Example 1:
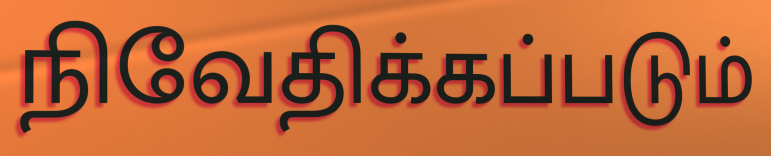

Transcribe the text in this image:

நிவேதிக்கப்படும்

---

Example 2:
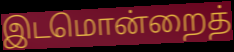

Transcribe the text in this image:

இடமொன்றைத்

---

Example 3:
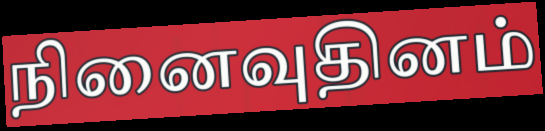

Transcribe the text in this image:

நினைவுதினம்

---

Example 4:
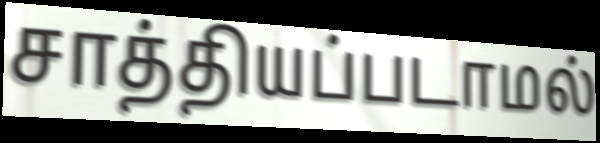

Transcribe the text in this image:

சாத்தியப்படாமல்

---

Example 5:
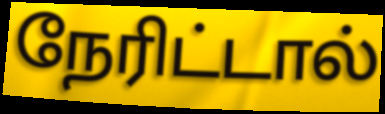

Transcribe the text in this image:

நேரிட்டால்